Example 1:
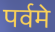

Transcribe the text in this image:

पर्वमे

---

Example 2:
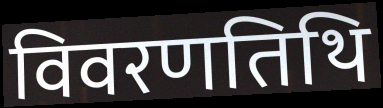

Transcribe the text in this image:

विवरणतिथि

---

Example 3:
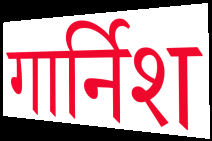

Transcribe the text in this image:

गार्निश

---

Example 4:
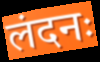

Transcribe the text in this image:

लंदनः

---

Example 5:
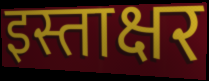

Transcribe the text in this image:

इस्ताक्षर